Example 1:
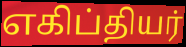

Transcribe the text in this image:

எகிப்தியர்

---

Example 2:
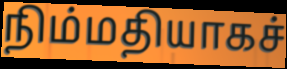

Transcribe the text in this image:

நிம்மதியாகச்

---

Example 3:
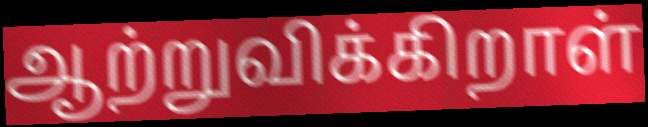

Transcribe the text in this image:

ஆற்றுவிக்கிறாள்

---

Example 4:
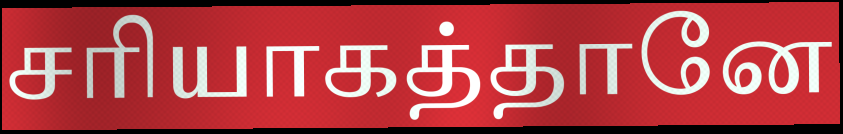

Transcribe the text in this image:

சரியாகத்தானே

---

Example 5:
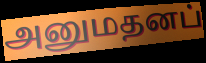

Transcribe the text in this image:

அனுமதனப்